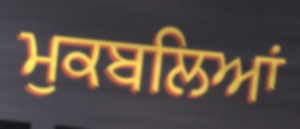
ਮੁਕਬਲਿਆਂ